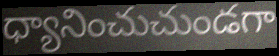
ధ్యానించుచుండగా